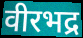
वीरभद्र